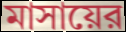
মাসায়ের